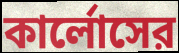
কার্লোসের